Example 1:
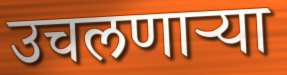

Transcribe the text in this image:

उचलणाऱ्या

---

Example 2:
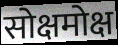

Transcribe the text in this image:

सोक्षमोक्ष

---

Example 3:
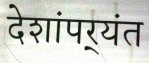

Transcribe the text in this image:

देशांपर्यंत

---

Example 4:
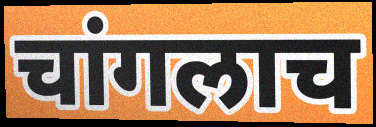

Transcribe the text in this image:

चांगलाच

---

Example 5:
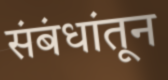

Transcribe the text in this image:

संबंधांतून